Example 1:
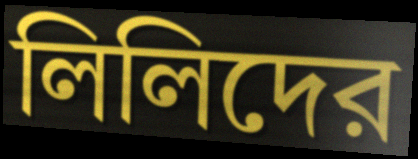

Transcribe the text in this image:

লিলিদের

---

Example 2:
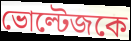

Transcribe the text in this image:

ভোল্টেজকে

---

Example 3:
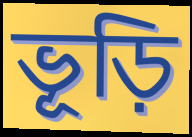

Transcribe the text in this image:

ভূড়ি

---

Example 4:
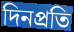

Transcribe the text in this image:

দিনপ্রতি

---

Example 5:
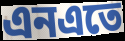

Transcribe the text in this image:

এনএতে